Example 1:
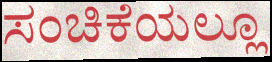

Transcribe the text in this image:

ಸಂಚಿಕೆಯಲ್ಲೂ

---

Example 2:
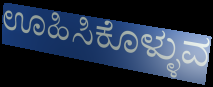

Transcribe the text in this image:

ಊಹಿಸಿಕೊಳ್ಳುವ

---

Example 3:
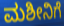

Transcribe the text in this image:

ಮಶೀನಿಗೆ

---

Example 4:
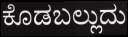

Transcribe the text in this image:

ಕೊಡಬಲ್ಲುದು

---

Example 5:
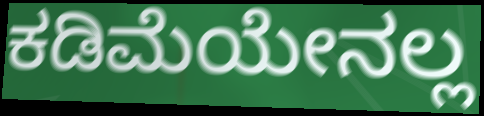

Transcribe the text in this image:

ಕಡಿಮೆಯೇನಲ್ಲ